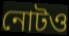
নোটও